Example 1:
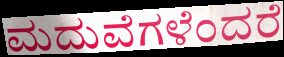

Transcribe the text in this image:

ಮದುವೆಗಳೆಂದರೆ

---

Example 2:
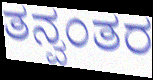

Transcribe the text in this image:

ತನ್ವಂತರ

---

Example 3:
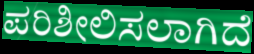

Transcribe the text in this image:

ಪರಿಶೀಲಿಸಲಾಗಿದೆ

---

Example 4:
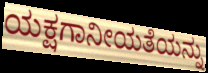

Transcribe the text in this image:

ಯಕ್ಷಗಾನೀಯತೆಯನ್ನು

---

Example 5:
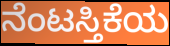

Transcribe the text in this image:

ನೆಂಟಸ್ತಿಕೆಯ